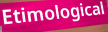
Etimological